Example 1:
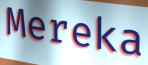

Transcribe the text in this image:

Mereka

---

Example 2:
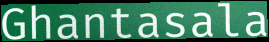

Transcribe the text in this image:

Ghantasala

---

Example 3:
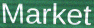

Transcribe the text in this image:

Market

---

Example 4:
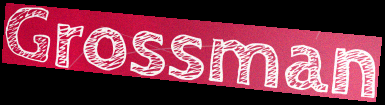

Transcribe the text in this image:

Grossman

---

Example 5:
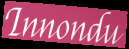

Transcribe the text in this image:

Innondu